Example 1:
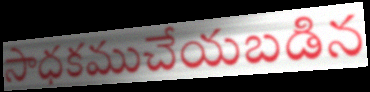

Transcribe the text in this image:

సాధకముచేయబడిన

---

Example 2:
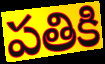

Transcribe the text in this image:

పతికి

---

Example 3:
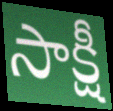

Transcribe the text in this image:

సాక్షీ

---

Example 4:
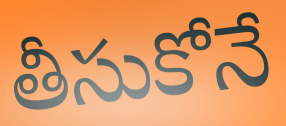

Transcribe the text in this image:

తీసుకోనే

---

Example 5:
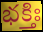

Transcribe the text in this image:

భక్తిః